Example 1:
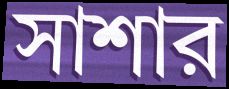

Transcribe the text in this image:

সাশার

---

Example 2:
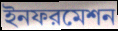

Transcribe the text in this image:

ইনফরমেশন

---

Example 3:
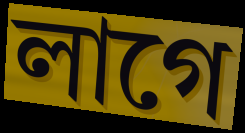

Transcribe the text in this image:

লাগে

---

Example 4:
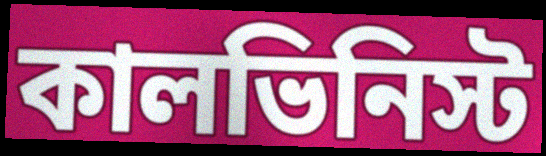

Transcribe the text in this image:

কালভিনিস্ট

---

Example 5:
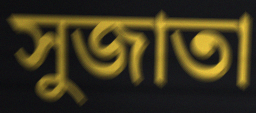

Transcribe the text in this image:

সুজাতা